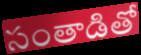
సంతాడితో